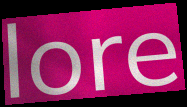
lore